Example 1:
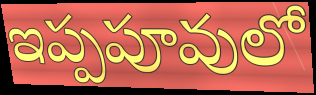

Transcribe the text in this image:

ఇప్పపూవులో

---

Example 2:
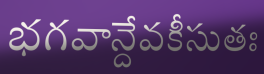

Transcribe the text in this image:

భగవాన్దేవకీసుతః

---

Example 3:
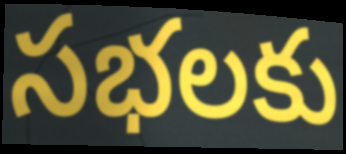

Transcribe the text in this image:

సభలకు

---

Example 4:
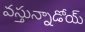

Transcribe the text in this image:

వస్తున్నాడోయ్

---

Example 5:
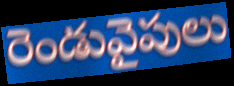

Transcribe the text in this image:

రెండువైపులు